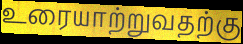
உரையாற்றுவதற்கு